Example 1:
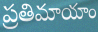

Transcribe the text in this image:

ప్రతిమాయాం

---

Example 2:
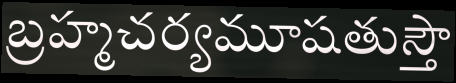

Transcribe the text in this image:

బ్రహ్మచర్యమూషతుస్తౌ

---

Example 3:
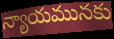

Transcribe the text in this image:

న్యాయమునకు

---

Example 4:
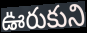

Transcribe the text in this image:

ఊరుకుని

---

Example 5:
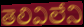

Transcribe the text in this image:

తెలివిలేని